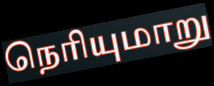
நெரியுமாறு